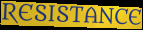
RESISTANCE